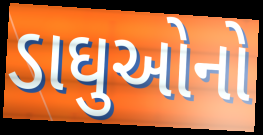
ડાઘુઓનો